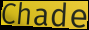
Chade